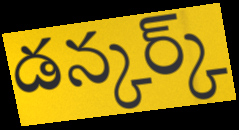
డన్కర్క్